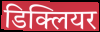
डिक्लियर